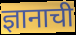
ज्ञानाची